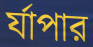
র্যাপার